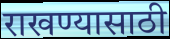
राखण्यासाठी